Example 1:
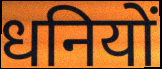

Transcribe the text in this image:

धनियों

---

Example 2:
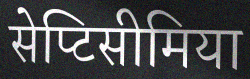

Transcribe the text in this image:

सेप्टिसीमिया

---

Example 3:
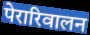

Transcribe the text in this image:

पेरारिवालन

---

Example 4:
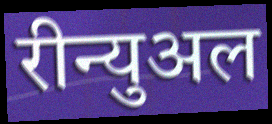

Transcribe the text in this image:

रीन्युअल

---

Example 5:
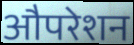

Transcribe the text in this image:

औपरेशन